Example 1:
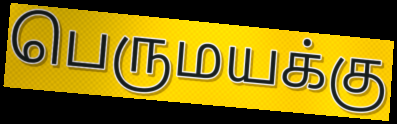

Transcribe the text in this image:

பெருமயக்கு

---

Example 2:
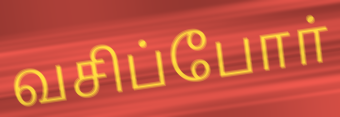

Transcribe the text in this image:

வசிப்போர்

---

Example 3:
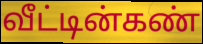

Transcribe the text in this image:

வீட்டின்கண்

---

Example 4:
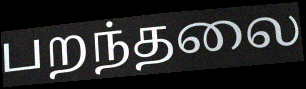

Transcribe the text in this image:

பறந்தலை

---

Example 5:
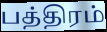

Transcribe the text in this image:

பத்திரம்